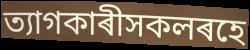
ত্যাগকাৰীসকলৰহে